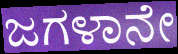
ಜಗಳಾನೇ